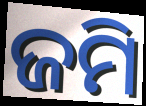
ଜମି